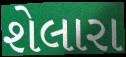
શેલારા